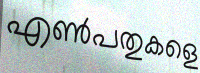
എൺപതുകളെ